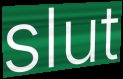
slut